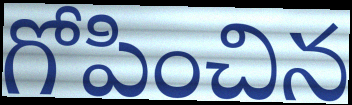
గోపించిన